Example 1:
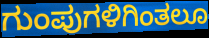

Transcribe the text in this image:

ಗುಂಪುಗಳಿಗಿಂತಲೂ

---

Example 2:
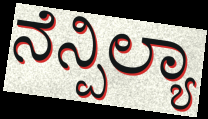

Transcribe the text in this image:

ನೆನ್ಪಿಲ್ಯಾ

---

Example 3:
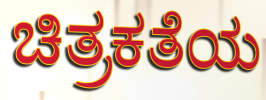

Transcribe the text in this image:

ಚಿತ್ರಕತೆಯ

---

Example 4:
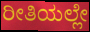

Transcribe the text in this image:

ರೀತಿಯಲ್ಲೇ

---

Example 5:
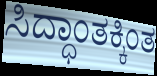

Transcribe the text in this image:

ಸಿದ್ಧಾಂತಕ್ಕಿಂತ